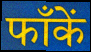
फाँकें